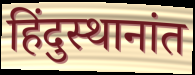
हिंदुस्थानांत